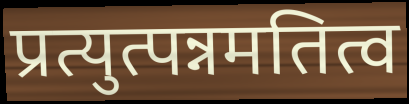
प्रत्युत्पन्नमतित्व